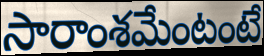
సారాంశమేంటంటే